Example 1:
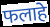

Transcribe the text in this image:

फलाहे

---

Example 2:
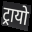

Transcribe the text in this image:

ट्रायो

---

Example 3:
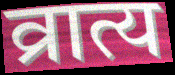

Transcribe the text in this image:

व्रात्य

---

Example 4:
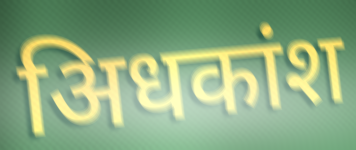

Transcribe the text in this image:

अिधकांश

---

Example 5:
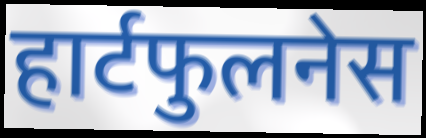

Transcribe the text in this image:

हार्टफुलनेस